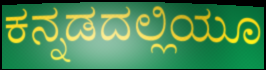
ಕನ್ನಡದಲ್ಲಿಯೂ